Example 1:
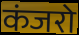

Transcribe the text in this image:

कंजरो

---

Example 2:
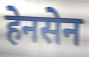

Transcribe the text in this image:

हेनसेन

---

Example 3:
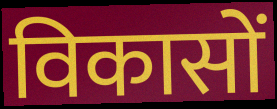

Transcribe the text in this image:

विकासों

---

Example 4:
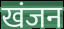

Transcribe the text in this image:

खंजन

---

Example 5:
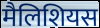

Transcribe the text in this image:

मैलिशियस